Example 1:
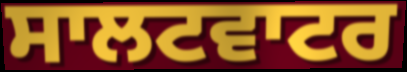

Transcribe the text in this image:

ਸਾਲਟਵਾਟਰ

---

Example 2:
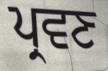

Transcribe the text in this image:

ਪ੍ਰਵਣ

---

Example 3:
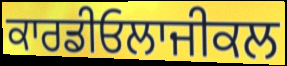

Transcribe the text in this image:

ਕਾਰਡੀਓਲਾਜੀਕਲ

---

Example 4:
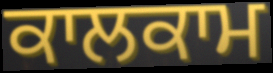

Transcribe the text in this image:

ਕਾਲਕਾਮ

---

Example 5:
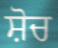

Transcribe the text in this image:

ਸ਼ੋਚ